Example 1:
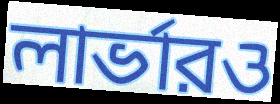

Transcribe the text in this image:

লার্ভারও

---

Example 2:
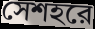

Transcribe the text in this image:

সেশহরে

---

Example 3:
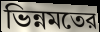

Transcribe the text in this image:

ভিন্নমতের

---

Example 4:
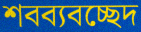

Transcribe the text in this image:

শবব্যবচ্ছেদ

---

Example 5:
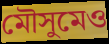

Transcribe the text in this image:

মৌসুমেও